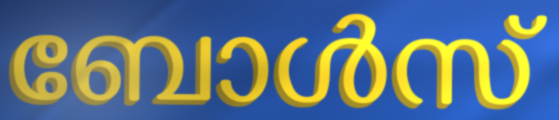
ബോൾസ്